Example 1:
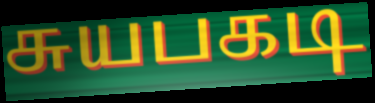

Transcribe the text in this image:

சுயபகடி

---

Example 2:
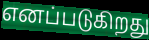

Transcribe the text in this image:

எனப்படுகிறது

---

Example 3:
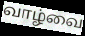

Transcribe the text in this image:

வாழ்வை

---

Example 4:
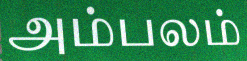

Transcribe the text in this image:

அம்பலம்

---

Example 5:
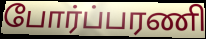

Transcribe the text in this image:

போர்ப்பரணி